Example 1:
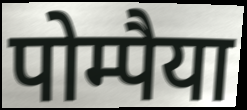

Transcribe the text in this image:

पोम्पैया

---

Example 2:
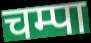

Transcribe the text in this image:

चम्पा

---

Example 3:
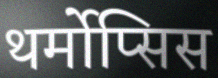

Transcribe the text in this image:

थर्मोप्सिस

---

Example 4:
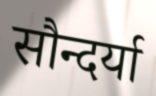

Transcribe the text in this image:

सौन्दर्या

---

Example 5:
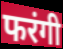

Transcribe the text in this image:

फरंगी